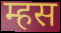
म्हस